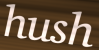
hush